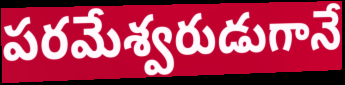
పరమేశ్వరుడుగానే